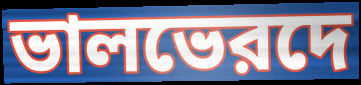
ভালভেরদে